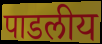
पाडलीय